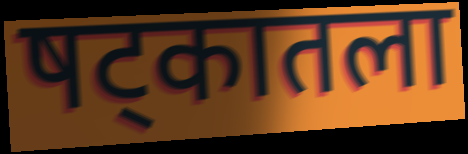
षट्कातला